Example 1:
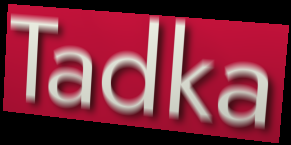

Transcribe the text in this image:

Tadka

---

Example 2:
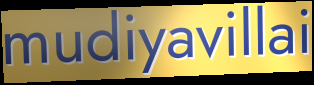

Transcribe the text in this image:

mudiyavillai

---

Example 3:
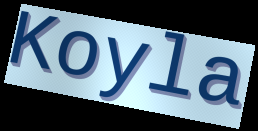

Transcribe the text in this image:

Koyla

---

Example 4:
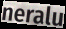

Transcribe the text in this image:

neralu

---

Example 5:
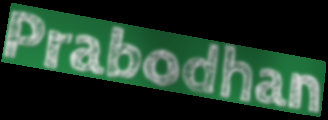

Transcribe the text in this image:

Prabodhan